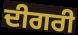
ਦੀਗਰੀ